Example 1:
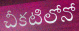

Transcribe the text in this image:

చీకటిలోనో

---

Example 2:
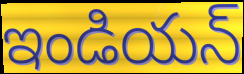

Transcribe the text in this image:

ఇండియన్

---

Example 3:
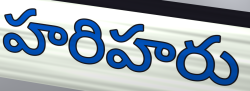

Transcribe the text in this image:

హరిహరు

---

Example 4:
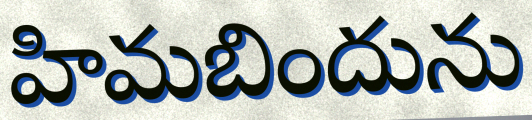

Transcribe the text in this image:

హిమబిందును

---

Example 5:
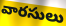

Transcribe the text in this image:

వారసులు